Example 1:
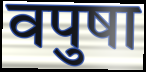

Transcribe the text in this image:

वपुषा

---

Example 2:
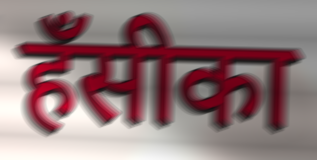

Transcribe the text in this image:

हँसीका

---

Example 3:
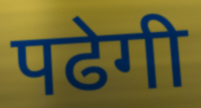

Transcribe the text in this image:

पढेगी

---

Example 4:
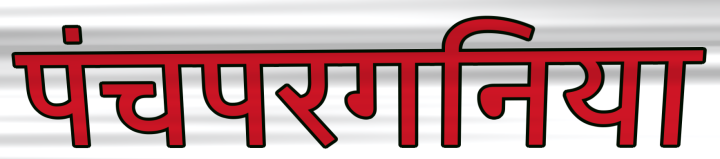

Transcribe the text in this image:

पंचपरगनिया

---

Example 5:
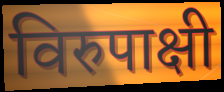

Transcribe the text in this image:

विरुपाक्षी